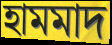
হামমাদ